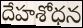
దేహశోధన